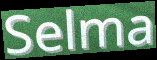
Selma